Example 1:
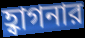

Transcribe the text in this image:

হ্বাগনার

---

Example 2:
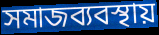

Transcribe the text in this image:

সমাজব্যবস্থায়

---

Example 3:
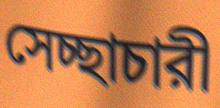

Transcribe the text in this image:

সেচ্ছাচারী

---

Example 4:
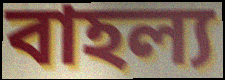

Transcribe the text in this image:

বাহল্য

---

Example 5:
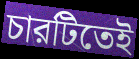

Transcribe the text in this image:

চারটিতেই